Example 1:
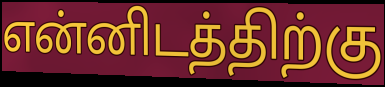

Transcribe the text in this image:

என்னிடத்திற்கு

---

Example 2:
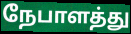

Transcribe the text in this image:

நேபாளத்து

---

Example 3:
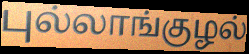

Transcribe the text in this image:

புல்லாங்குழல்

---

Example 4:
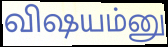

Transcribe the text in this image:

விஷயம்னு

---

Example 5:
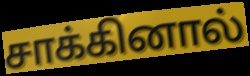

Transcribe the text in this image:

சாக்கினால்